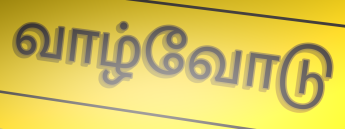
வாழ்வோடு